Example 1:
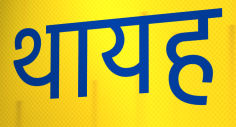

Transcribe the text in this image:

थायह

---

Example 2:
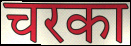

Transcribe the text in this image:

चरका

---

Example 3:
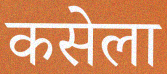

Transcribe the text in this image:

कसेला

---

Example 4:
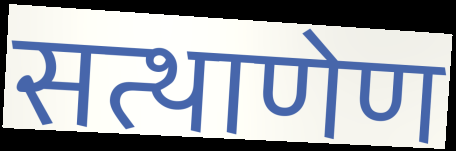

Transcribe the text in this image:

सत्थाणेण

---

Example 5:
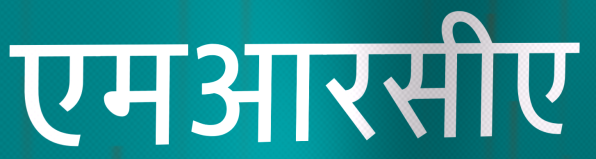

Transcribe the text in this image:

एमआरसीए